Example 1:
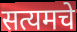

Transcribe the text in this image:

सत्यमचे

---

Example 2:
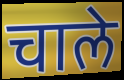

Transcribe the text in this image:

चाले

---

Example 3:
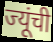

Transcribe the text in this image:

ज्यूंची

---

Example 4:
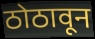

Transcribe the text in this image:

ठोठावून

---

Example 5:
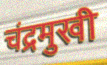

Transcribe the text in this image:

चंद्रमुखी